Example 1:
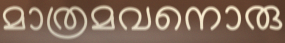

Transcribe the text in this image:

മാത്രമവനൊരു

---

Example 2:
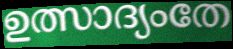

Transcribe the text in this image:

ഉത്സാദ്യംതേ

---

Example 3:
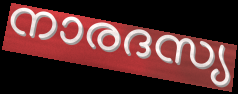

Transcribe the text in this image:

നാരദസ്യ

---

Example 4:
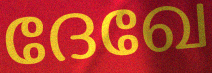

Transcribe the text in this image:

ദേഖേ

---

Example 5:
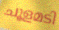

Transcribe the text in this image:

ചൂളമടി